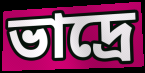
ভাদ্রে